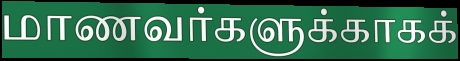
மாணவர்களுக்காகக்